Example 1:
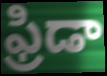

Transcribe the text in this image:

ఫ్రిడా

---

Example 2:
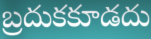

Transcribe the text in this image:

బ్రదుకకూడదు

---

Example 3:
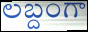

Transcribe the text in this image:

లబ్దంగా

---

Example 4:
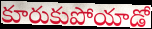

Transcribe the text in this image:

కూరుకుపోయాడో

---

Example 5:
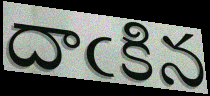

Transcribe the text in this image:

దాఁకిన